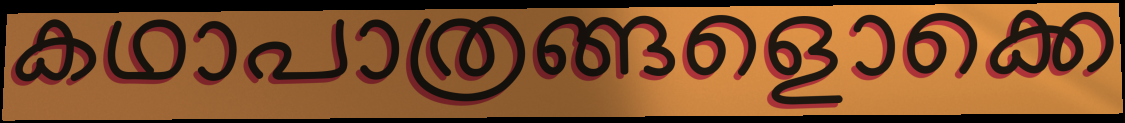
കഥാപാത്രങ്ങളൊക്കെ